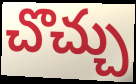
చొచ్చు